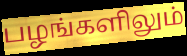
பழங்களிலும்